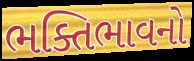
ભક્તિભાવનો